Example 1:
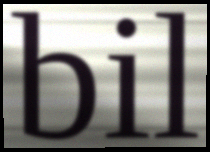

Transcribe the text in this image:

bil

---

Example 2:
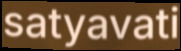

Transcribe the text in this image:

satyavati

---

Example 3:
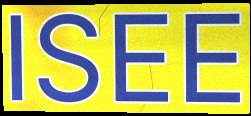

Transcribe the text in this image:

ISEE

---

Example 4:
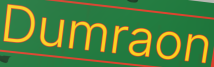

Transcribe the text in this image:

Dumraon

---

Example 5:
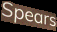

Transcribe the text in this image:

Spears